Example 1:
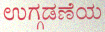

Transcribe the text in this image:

ಉಗ್ಗಡಣೆಯ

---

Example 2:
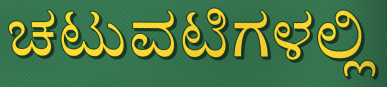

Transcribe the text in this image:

ಚಟುವಟಿಗಳಲ್ಲಿ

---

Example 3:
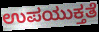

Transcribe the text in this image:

ಉಪಯುಕ್ತತೆ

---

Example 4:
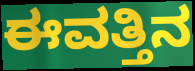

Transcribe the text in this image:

ಈವತ್ತಿನ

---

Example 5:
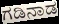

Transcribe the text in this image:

ಗಡಿನಾಡ